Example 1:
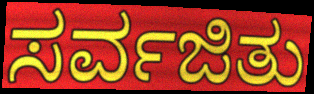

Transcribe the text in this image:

ಸರ್ವಜಿತು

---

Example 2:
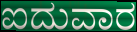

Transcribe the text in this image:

ಐದುವಾರ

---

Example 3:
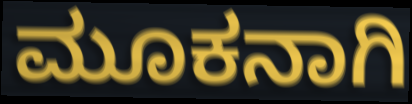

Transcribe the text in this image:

ಮೂಕನಾಗಿ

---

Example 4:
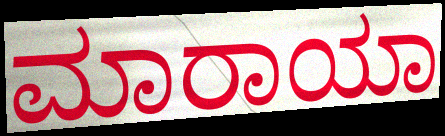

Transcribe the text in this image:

ಮಾರಾಯಾ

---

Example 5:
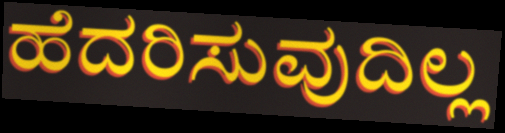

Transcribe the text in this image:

ಹೆದರಿಸುವುದಿಲ್ಲ